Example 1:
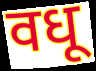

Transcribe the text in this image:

वधू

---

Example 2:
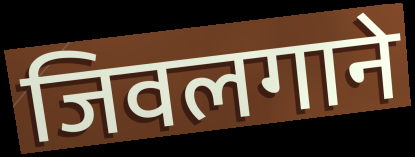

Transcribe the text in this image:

जिवलगाने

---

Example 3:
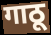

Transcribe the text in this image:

गाठू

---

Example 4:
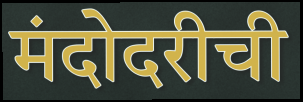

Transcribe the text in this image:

मंदोदरीची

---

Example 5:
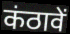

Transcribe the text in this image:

कंठावें